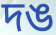
দঙ